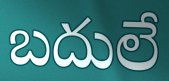
బదులే